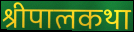
श्रीपालकथा